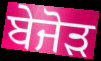
ਬੇਜੋੜ